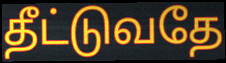
தீட்டுவதே